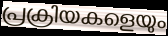
പ്രക്രിയകളെയും